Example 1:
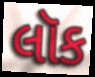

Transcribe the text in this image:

લૉક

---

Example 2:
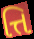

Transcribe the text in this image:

ત્તિ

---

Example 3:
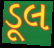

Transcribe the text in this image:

ડૂલ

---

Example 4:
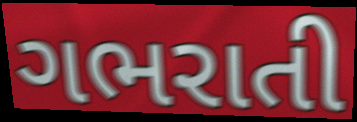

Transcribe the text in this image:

ગભરાતી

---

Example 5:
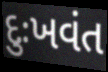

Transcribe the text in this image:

દુઃખવંત